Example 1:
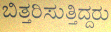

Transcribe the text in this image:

ಬಿತ್ತರಿಸುತ್ತಿದ್ದರು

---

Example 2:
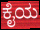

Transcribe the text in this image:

ಕೈಯ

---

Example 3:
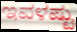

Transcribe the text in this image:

ಇವಳಷ್ಟು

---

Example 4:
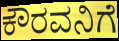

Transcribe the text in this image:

ಕೌರವನಿಗೆ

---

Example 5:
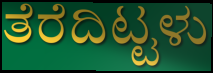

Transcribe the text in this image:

ತೆರೆದಿಟ್ಟಳು